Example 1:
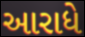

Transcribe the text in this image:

આરાધે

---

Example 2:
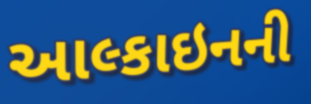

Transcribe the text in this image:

આલ્કાઇનની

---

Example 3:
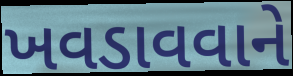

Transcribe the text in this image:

ખવડાવવાને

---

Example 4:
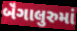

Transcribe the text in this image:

બૅંગાલુરુમાં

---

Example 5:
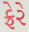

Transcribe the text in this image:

ફ્રેરે